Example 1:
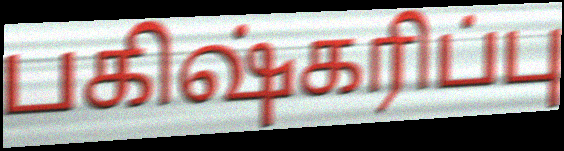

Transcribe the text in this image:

பகிஷ்கரிப்பு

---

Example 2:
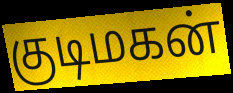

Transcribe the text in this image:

குடிமகன்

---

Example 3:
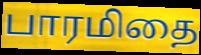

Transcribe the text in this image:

பாரமிதை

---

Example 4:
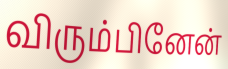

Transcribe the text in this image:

விரும்பினேன்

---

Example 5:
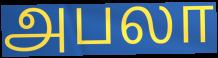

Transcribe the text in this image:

அபலா